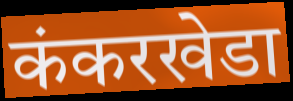
कंकरखेडा